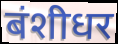
बंशीधर